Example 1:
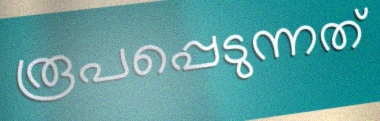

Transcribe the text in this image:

രൂപപ്പെടുന്നത്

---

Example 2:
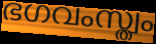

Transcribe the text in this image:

ഭഗവംസ്ത്വം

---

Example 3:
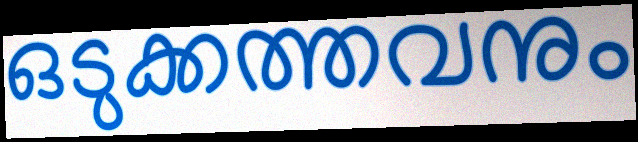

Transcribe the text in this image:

ഒടുക്കത്തവനും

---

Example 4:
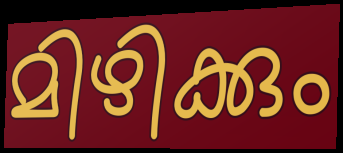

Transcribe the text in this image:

മിഴിക്കും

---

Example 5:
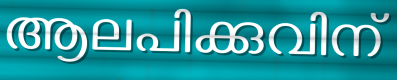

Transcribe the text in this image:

ആലപിക്കുവിന്